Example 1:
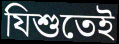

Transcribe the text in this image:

যিশুতেই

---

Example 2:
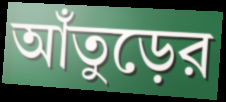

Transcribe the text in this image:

আঁতুড়ের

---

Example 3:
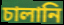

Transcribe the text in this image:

চালানি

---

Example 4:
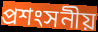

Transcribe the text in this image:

প্রশংসনীয়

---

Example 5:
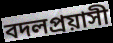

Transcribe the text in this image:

বদলপ্রয়াসী